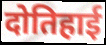
दोतिहाई